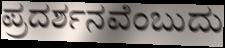
ಪ್ರದರ್ಶನವೆಂಬುದು